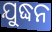
ଯୁଦ୍ଧନ